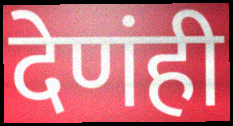
देणंही